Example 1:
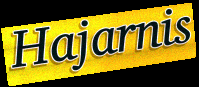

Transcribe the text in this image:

Hajarnis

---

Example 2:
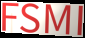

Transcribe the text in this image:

FSMI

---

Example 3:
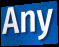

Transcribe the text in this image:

Any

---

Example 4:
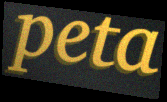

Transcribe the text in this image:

peta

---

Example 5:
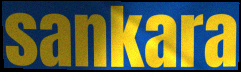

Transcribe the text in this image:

sankara